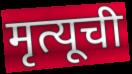
मृत्यूची